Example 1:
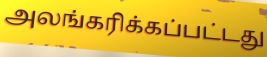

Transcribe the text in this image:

அலங்கரிக்கப்பட்டது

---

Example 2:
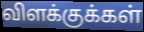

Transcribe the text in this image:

விளக்குக்கள்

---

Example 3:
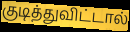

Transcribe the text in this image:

குடித்துவிட்டால்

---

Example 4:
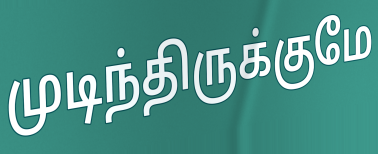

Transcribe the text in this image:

முடிந்திருக்குமே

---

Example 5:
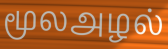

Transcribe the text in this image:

மூலஅழல்